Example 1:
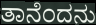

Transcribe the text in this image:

ತಾನೆಂದನು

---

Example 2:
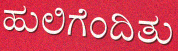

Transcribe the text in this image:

ಹುಲಿಗೆಂದಿತು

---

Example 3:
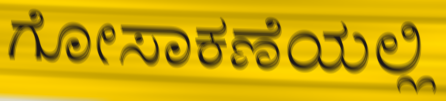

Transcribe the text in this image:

ಗೋಸಾಕಣೆಯಲ್ಲಿ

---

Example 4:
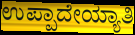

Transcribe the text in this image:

ಉಪ್ಪಾದೇಯ್ಯಾತಿ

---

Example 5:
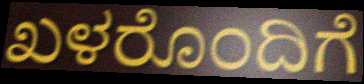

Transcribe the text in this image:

ಖಳರೊಂದಿಗೆ